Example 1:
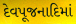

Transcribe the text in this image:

દેવપૂજનાદિમાં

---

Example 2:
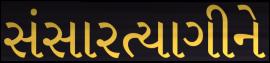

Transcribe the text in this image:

સંસારત્યાગીને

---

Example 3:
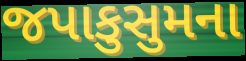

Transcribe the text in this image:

જપાકુસુમના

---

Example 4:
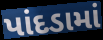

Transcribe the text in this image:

પાંદડામાં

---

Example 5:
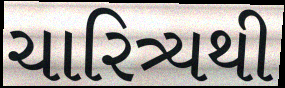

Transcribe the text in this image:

ચારિત્ર્યથી